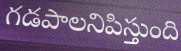
గడపాలనిపిస్తుంది